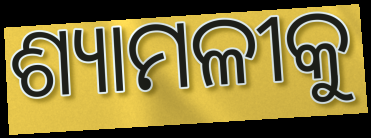
ଶ୍ୟାମଳୀକୁ